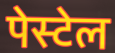
पेस्टेल